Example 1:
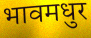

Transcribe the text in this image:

भावमधुर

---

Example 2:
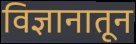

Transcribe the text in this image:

विज्ञानातून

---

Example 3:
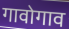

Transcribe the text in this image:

गावोगाव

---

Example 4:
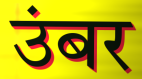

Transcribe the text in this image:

उंबर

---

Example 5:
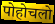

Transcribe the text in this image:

पोहोचलो